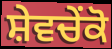
ਸ਼ੇਵਚੇਂਕੋ